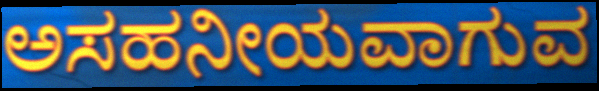
ಅಸಹನೀಯವಾಗುವ